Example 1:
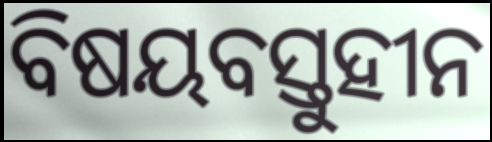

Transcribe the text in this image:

ବିଷୟବସ୍ତୁହୀନ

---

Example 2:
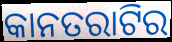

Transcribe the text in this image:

କାନତରାଟିର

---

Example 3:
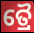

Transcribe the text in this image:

ତ୍ରୈ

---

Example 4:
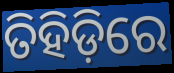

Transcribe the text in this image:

ତିହିଡ଼ିରେ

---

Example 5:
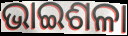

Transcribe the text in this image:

ଭାଇଶଳା